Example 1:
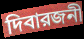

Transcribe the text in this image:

দিবারজনী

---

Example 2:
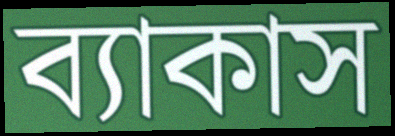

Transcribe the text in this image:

ব্যাকাস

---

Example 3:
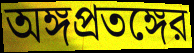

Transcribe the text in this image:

অঙ্গপ্রতঙ্গের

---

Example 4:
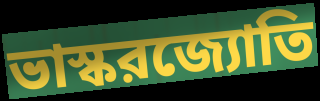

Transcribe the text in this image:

ভাস্করজ্যোতি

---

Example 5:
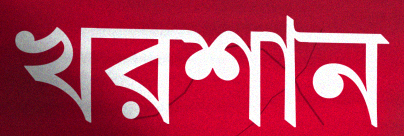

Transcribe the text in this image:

খরশান